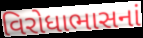
વિરોધાભાસનાં